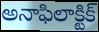
అనాఫిలాక్టిక్